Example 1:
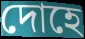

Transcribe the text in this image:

দোহে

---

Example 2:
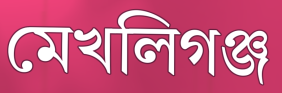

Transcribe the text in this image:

মেখলিগঞ্জ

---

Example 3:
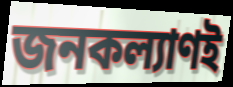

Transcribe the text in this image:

জনকল্যাণই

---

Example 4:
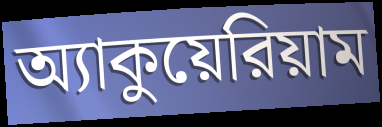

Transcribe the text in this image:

অ্যাকুয়েরিয়াম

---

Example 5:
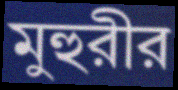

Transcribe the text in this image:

মুহুরীর